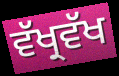
ਵੱਖ੍ਰਵੱਖ